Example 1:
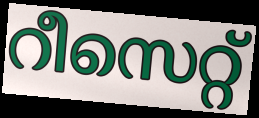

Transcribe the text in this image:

റീസെറ്റ്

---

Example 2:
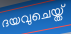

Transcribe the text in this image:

ദയവുചെയ്ത്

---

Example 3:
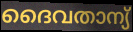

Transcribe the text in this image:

ദൈവതാന്യ്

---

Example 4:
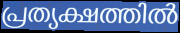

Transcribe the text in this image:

പ്രത്യക്ഷത്തിൽ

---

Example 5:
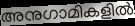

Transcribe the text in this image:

അനുഗാമികളിൽ